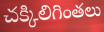
చక్కిలిగింతలు